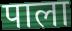
पाला